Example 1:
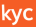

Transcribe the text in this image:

kyc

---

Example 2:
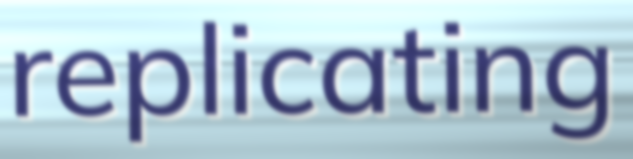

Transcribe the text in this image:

replicating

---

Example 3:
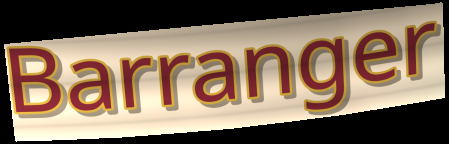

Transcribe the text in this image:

Barranger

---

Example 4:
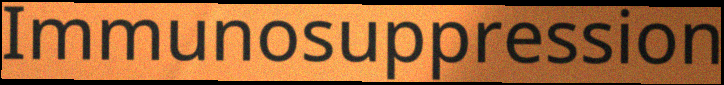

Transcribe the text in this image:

Immunosuppression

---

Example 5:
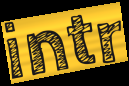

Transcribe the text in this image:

intr